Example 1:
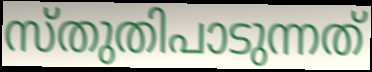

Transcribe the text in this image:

സ്തുതിപാടുന്നത്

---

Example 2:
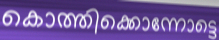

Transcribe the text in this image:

കൊത്തിക്കൊന്നോട്ടെ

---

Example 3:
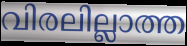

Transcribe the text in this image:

വിരലില്ലാത്ത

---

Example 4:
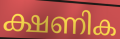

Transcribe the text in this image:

ക്ഷണിക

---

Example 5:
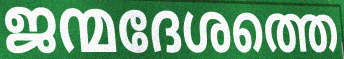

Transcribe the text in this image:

ജന്മദേശത്തെ